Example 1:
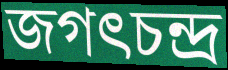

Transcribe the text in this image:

জগৎচন্দ্র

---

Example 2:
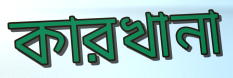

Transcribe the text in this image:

কারখানা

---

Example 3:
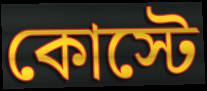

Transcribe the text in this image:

কোস্টে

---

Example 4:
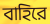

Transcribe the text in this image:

বাহিরে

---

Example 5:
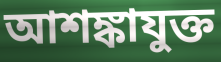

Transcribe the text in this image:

আশঙ্কাযুক্ত